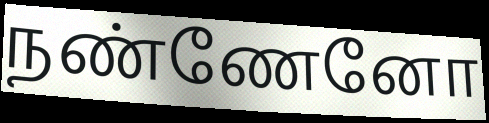
நண்ணேனோ